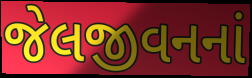
જેલજીવનનાં